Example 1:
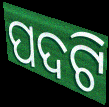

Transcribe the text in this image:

ପଦଟି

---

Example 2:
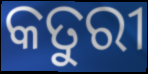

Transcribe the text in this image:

କତୁରୀ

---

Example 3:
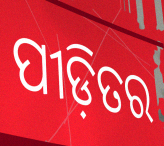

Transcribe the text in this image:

ପୀଡ଼ିତର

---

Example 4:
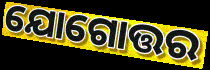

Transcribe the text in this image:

ଯୋଗୋତ୍ତର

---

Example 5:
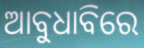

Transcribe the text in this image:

ଆବୁଧାବିରେ